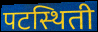
पटस्थिती